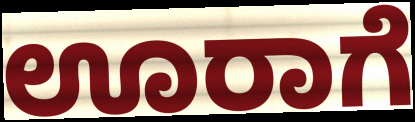
ಊರಾಗೆ